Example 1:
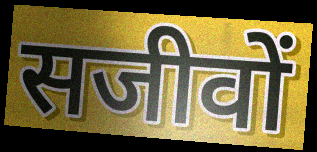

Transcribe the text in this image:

सजीवों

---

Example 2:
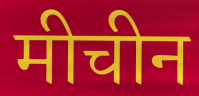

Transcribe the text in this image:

मीचीन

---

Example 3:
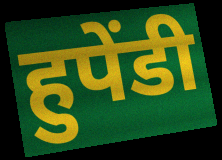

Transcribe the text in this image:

हुपेंडी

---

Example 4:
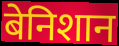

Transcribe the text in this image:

बेनिशान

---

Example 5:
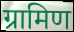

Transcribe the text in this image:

ग्रामिण